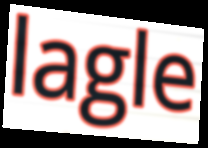
lagle